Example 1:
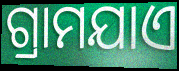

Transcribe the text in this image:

ଗ୍ରାମଯାଏ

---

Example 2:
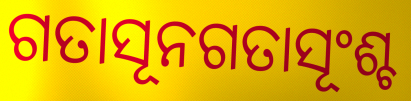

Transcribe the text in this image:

ଗତାସୂନଗତାସୂଂଶ୍ଚ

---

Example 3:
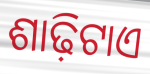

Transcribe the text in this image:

ଶାଢ଼ିଟାଏ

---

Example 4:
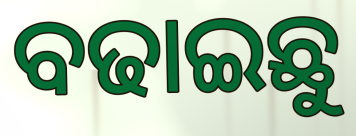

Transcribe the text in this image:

ବଢାଇଛୁ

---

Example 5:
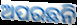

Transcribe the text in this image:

ଅପରଛନି